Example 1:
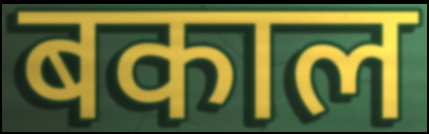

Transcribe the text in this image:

बकाल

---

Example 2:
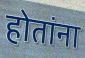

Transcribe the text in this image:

होतांना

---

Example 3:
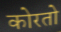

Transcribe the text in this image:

कोरतो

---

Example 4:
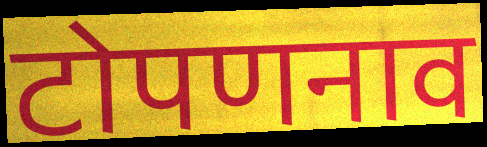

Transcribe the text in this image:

टोपणनाव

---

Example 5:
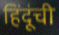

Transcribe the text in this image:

हिंदूंची